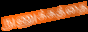
நுணுக்கத்தை